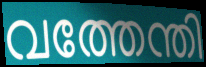
വത്തേന്തി